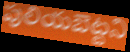
పులియబెట్టని